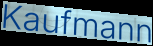
Kaufmann